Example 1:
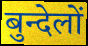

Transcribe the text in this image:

बुन्देलों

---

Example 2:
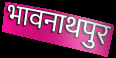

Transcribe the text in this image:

भावनाथपुर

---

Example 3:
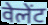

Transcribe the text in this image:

वेलेंट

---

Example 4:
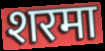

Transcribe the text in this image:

शरमा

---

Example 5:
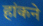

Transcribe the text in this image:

हांकने